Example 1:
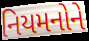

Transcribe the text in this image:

નિયમનોને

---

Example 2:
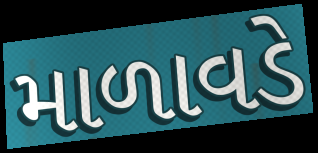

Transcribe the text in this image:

માળાવડે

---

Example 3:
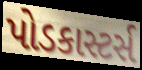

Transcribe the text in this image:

પોડકાસ્ટર્સ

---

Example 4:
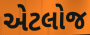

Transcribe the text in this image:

એટલોજ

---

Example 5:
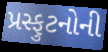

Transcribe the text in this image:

પ્રસ્ફુટનોની